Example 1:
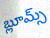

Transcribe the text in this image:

బ్లూమ్స్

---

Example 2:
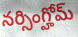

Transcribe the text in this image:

నర్సింగ్హోమ్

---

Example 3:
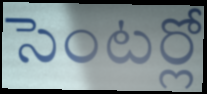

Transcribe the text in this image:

సెంటర్లో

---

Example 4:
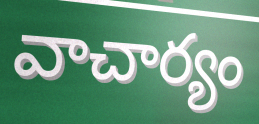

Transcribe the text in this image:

వాచార్యం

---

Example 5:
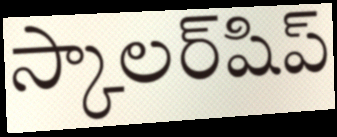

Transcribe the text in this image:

స్కాలర్‌షిప్